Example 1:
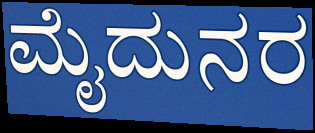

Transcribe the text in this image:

ಮೈದುನರ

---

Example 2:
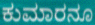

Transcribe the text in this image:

ಕುಮಾರನೂ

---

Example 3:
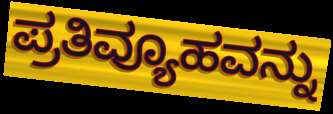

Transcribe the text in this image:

ಪ್ರತಿವ್ಯೂಹವನ್ನು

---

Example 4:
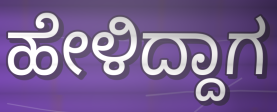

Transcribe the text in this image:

ಹೇಳಿದ್ದಾಗ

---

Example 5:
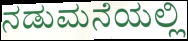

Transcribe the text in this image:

ನಡುಮನೆಯಲ್ಲಿ